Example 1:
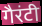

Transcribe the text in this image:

गैरंटी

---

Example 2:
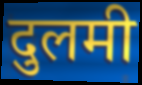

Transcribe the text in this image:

दुलमी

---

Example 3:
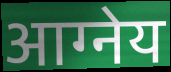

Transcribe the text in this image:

आग्नेय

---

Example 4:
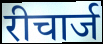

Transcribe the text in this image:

रीचार्ज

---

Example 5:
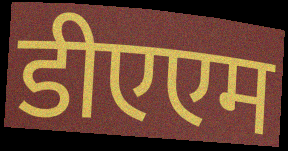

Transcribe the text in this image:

डीएएम